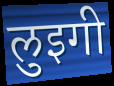
लुइगी